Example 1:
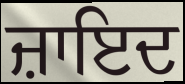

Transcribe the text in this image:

ਜ਼ਾਇਦ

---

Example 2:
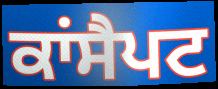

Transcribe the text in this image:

ਕਾਂਸੈਪਟ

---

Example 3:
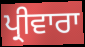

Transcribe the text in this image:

ਪ੍ਰੀਵਾਰਾ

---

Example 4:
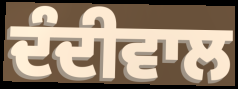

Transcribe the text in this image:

ਦੰਦੀਵਾਲ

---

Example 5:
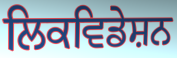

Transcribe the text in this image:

ਲਿਕਵਿਡੇਸ਼ਨ